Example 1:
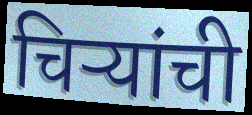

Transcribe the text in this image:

चिऱ्यांची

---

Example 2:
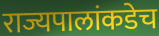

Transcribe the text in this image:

राज्यपालांकडेच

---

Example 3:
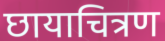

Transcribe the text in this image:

छायाचित्रण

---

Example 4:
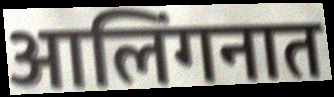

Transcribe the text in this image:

आलिंगनात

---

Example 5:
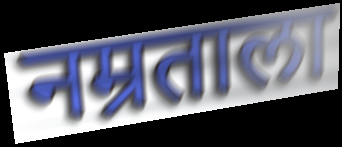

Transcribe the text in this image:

नम्रताला